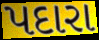
પદારા